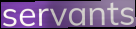
servants